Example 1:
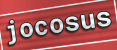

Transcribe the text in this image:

jocosus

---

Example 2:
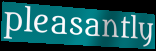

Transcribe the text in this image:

pleasantly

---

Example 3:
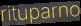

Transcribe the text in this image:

rituparno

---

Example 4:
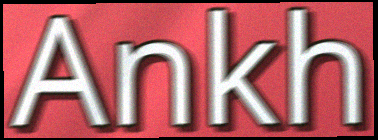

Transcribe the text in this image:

Ankh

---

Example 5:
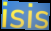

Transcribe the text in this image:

isis